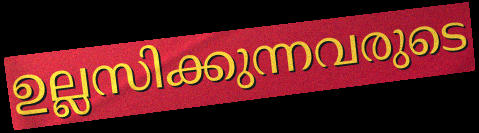
ഉല്ലസിക്കുന്നവരുടെ